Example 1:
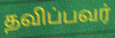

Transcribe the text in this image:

தவிப்பவர்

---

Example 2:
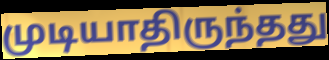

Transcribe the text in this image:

முடியாதிருந்தது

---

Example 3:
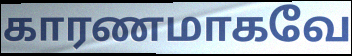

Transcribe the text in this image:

காரணமாகவே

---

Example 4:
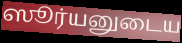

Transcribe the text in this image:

ஸூர்யனுடைய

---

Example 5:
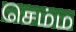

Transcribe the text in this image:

செம்ம